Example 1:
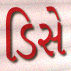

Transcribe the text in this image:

ડિસે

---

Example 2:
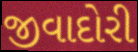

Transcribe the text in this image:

જીવાદોરી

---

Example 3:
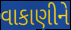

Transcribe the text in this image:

વાકાણીને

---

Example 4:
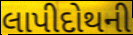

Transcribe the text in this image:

લાપીદોથની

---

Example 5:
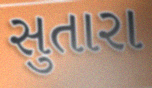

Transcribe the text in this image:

સુતારા